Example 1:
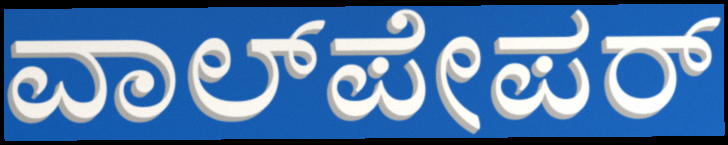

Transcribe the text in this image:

ವಾಲ್‌ಪೇಪರ್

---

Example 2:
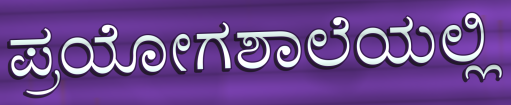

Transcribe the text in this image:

ಪ್ರಯೋಗಶಾಲೆಯಲ್ಲಿ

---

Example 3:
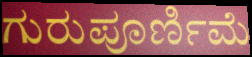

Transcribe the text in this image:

ಗುರುಪೂರ್ಣಿಮೆ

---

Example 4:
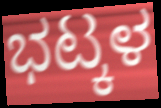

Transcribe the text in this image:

ಭಟ್ಕಳ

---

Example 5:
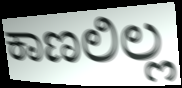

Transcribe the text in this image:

ಕಾಣಲಿಲ್ಲ